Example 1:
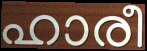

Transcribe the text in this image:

ഹാരീ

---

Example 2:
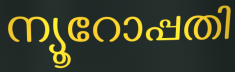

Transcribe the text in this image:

ന്യൂറോപ്പതി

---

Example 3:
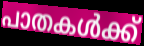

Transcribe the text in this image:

പാതകൾക്ക്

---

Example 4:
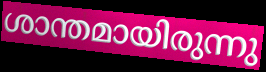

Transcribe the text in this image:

ശാന്തമായിരുന്നു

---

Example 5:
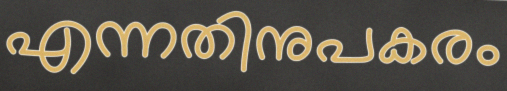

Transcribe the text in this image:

എന്നതിനുപകരം